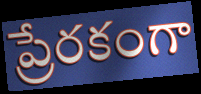
ప్రేరకంగా